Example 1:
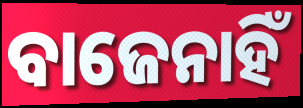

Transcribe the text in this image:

ବାଜେନାହିଁ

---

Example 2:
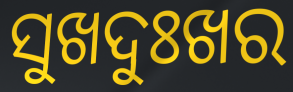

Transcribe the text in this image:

ସୁଖଦୁଃଖର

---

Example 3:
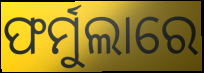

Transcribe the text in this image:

ଫର୍ମୁଲାରେ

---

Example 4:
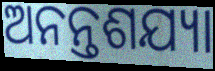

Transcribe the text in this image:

ଅନନ୍ତଶଯ୍ୟା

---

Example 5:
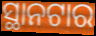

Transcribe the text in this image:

ସ୍ଥାନଟାର